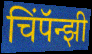
चिंपॅन्झी